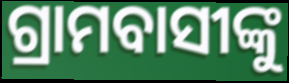
ଗ୍ରାମବାସୀଙ୍କୁ